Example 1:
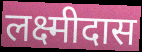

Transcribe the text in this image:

लक्ष्मीदास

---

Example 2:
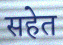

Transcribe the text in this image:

सहेत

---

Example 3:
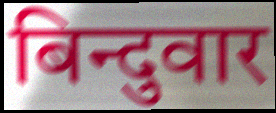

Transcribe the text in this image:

बिन्‍दुवार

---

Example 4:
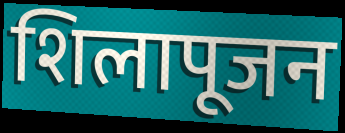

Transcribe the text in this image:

शिलापूजन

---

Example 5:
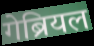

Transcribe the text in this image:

गेब्रियल